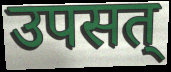
उपसत्